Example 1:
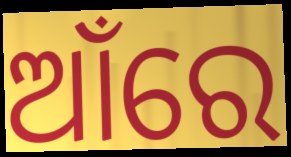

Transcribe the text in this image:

ଆଁରେ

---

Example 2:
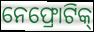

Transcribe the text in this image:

ନେଫ୍ରୋଟିକ୍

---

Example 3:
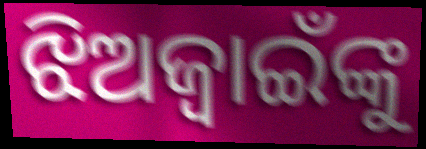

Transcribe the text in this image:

ଝିଅଜ୍ୱାଇଁଙ୍କୁ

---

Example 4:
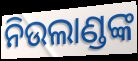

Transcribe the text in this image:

ନିଉଲାଣ୍ଡଙ୍କ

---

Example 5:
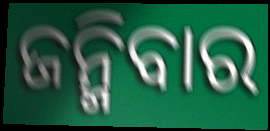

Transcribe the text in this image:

ଜନ୍ମିବାର